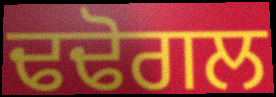
ਢਢੋਗਲ